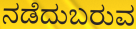
ನಡೆದುಬರುವ